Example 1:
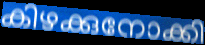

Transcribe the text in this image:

കിഴക്കുനോക്കി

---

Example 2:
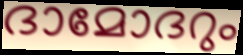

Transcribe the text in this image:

ദാമോദറും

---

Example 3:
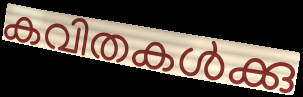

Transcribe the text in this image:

കവിതകൾക്കു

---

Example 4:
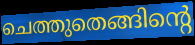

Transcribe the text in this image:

ചെത്തുതെങ്ങിന്റെ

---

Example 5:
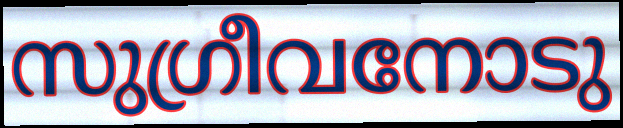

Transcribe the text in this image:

സുഗ്രീവനോടു